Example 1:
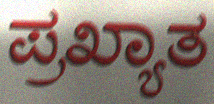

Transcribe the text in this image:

ಪ್ರಖ್ಯಾತ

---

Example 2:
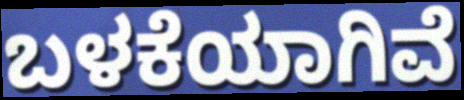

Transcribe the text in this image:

ಬಳಕೆಯಾಗಿವೆ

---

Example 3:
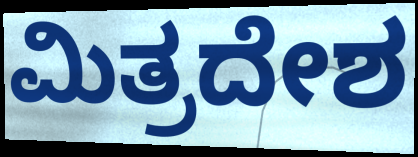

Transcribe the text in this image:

ಮಿತ್ರದೇಶ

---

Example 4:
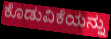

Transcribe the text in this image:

ಕೊಡುವಿಕೆಯನ್ನು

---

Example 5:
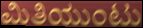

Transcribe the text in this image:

ಮಿತಿಯುಂಟು